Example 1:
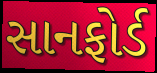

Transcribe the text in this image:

સાનફોર્ડ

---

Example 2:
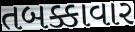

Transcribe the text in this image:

તબક્કાવાર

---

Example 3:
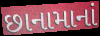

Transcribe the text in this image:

છાનામાનાં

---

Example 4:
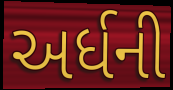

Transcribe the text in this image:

અર્ધની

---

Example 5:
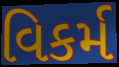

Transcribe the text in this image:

વિકર્મ